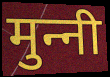
मुन्नी